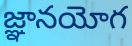
జ్ఞానయోగ